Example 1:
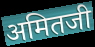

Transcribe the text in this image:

अमितजी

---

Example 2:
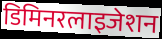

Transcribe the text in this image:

डिमिनरलाइजेशन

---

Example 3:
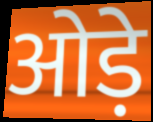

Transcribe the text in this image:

ओड़े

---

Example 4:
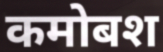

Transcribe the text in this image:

कमोबश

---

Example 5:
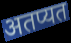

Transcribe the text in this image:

अतप्यत